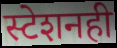
स्टेशनही